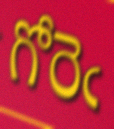
గోరెఁ